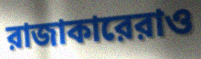
রাজাকারেরাও